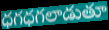
ధగధగలాడుతూ